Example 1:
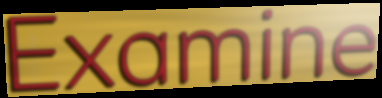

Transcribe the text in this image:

Examine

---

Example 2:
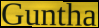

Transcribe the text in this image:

Guntha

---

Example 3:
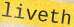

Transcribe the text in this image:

liveth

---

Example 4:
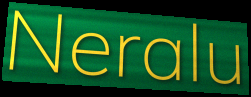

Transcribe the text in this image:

Neralu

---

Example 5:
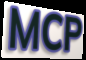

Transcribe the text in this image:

MCP